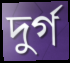
দুর্গ